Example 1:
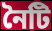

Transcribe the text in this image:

নৈটি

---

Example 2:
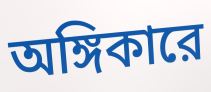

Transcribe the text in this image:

অঙ্গিকারে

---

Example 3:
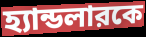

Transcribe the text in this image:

হ্যান্ডলারকে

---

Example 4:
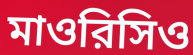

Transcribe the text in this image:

মাওরিসিও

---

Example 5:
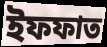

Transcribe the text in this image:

ইফফাত